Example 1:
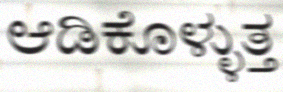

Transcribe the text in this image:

ಆಡಿಕೊಳ್ಳುತ್ತ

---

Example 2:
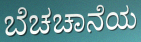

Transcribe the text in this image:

ಬೆಚಚಾನೆಯ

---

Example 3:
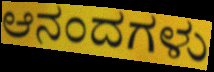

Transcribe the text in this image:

ಆನಂದಗಳು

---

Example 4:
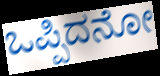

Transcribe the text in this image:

ಒಪ್ಪಿದನೋ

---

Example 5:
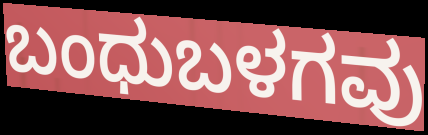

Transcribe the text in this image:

ಬಂಧುಬಳಗವು